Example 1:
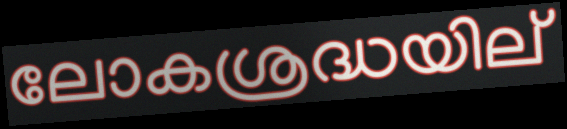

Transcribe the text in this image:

ലോകശ്രദ്ധയില്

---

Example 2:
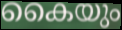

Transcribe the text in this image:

കൈയും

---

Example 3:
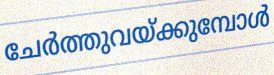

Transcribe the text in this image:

ചേർത്തുവയ്ക്കുമ്പോൾ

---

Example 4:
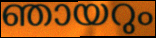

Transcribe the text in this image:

ഞായറും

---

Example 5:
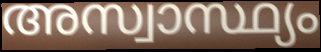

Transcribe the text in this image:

അസ്വാസ്ഥ്യം